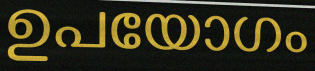
ഉപയോഗം